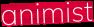
animist